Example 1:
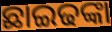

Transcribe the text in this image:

ଛାଇଢଙ୍କା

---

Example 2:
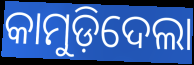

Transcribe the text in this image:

କାମୁଡ଼ିଦେଲା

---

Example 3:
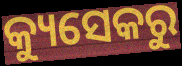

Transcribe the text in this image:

କ୍ୟୁସେକରୁ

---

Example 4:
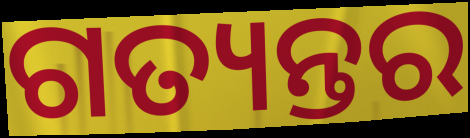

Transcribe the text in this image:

ଗତ୍ୟନ୍ତର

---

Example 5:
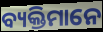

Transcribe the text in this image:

ବ୍ୟକ୍ତିମାନେ